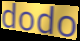
dodo